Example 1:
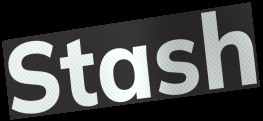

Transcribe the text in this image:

Stash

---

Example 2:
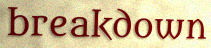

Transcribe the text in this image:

breakdown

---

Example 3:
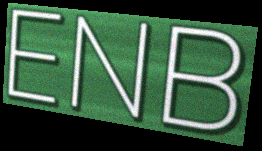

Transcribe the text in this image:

ENB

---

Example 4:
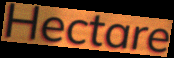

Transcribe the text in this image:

Hectare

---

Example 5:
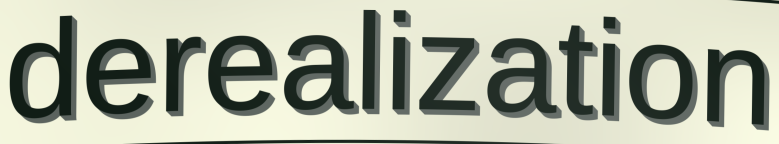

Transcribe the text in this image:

derealization